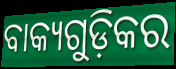
ବାକ୍ୟଗୁଡ଼ିକର